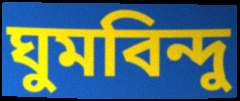
ঘুমবিন্দু